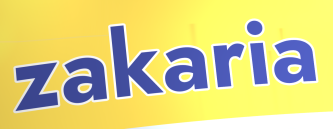
zakaria